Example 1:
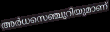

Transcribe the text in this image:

അർധസെഞ്ചുറിയുമാണ്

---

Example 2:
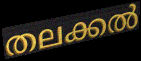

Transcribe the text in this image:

തലക്കൽ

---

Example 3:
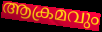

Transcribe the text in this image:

ആക്രമവും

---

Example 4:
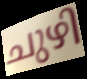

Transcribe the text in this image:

ചുഴി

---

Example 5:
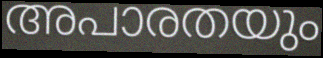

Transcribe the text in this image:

അപാരതയും